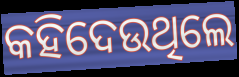
କହିଦେଉଥିଲେ